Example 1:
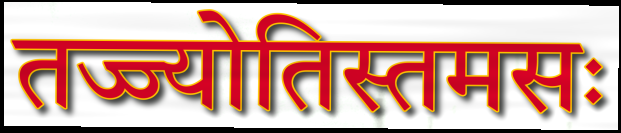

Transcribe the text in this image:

तज्ज्योतिस्तमसः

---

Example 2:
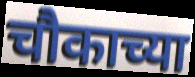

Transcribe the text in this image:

चौकाच्या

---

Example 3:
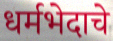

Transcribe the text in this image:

धर्मभेदाचे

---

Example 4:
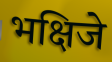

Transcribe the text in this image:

भक्षिजे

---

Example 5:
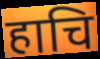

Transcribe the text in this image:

हाचि